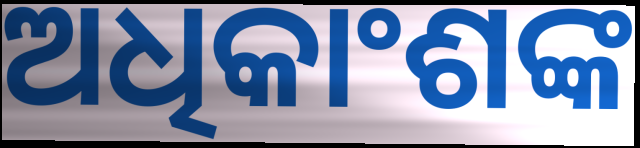
ଅଧିକାଂଶଙ୍କ